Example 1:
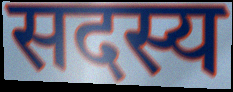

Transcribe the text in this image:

सदस्‍य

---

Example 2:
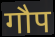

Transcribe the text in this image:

गौप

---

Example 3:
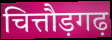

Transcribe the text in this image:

चित्तौड़गढ़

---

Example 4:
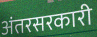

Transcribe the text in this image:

अंतरसरकारी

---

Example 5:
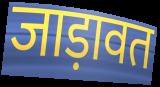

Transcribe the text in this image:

जाड़ावत